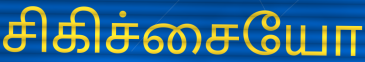
சிகிச்சையோ